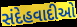
સંદેહવાદીઓ